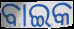
ବାଇକ